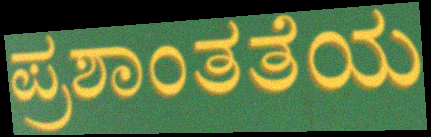
ಪ್ರಶಾಂತತೆಯ